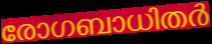
രോഗബാധിതർ